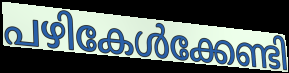
പഴികേൾക്കേണ്ടി